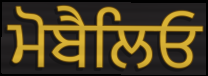
ਮੋਬੈਲਿਓ